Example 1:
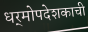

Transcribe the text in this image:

धर्मोपदेशकाची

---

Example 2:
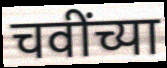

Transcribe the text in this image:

चवींच्या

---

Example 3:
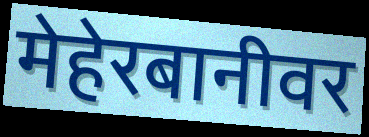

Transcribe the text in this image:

मेहेरबानीवर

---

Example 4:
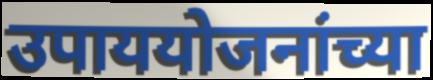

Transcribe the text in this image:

उपाययोजनांच्या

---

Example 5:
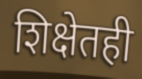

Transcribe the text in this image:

शिक्षेतही